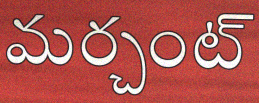
మర్చంట్